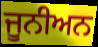
ਜੂਨੀਅਨ